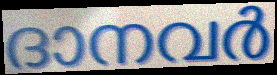
ദാനവർ